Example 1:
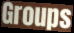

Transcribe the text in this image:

Groups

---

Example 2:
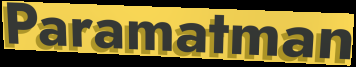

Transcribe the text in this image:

Paramatman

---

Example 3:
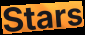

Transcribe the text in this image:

Stars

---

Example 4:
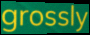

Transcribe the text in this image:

grossly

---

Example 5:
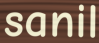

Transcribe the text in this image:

sanil